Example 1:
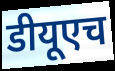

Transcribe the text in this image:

डीयूएच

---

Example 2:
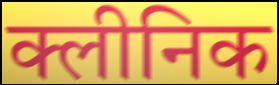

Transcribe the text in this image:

क्‍लीनिक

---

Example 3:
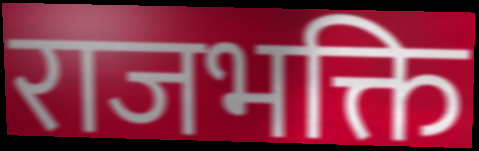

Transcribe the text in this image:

राजभक्ति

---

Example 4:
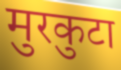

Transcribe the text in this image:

मुरकुटा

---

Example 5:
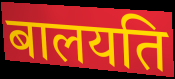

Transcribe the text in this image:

बालयति